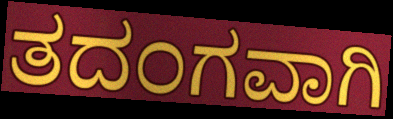
ತದಂಗವಾಗಿ